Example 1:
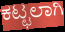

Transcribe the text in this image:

ಕಟ್ಟಲಾಗಿ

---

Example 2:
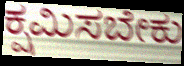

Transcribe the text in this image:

ಕ್ಷಮಿಸಬೇಕು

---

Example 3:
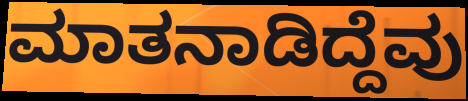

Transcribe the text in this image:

ಮಾತನಾಡಿದ್ದೆವು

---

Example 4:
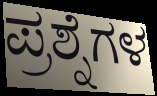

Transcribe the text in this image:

ಪ್ರಶ್ನೆಗಳ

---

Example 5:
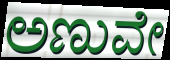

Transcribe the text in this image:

ಅಣುವೇ